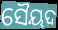
ସୈୟଦ